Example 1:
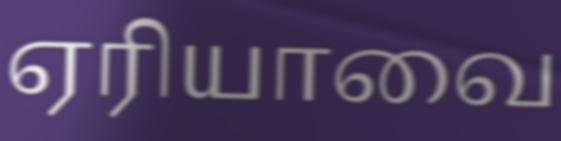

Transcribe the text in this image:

ஏரியாவை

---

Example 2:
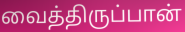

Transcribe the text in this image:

வைத்திருப்பான்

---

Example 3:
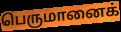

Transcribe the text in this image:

பெருமானைக்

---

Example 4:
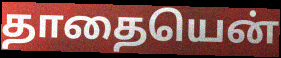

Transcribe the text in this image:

தாதையென்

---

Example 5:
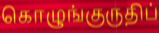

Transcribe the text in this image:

கொழுங்குருதிப்